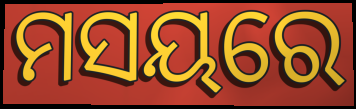
ମସୟରେ